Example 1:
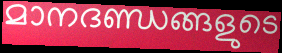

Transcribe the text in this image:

മാനദണ്ഡങ്ങളുടെ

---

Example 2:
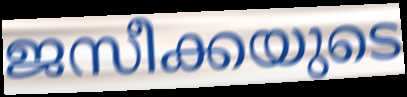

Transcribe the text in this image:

ജസീക്കയുടെ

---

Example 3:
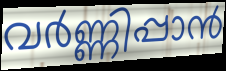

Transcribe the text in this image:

വർണ്ണിപ്പാൻ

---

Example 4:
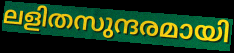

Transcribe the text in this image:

ലളിതസുന്ദരമായി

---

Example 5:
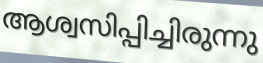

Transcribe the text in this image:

ആശ്വസിപ്പിച്ചിരുന്നു